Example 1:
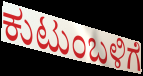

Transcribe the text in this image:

ಕುಟುಂಬಳಿಗೆ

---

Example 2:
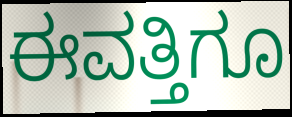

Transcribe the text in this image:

ಈವತ್ತಿಗೂ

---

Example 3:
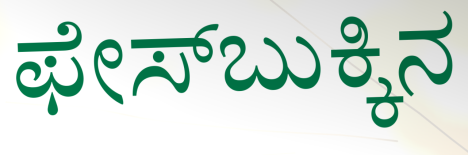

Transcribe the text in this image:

ಫೇಸ್‌ಬುಕ್ಕಿನ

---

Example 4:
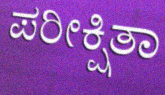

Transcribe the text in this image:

ಪರೀಕ್ಷಿತಾ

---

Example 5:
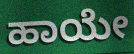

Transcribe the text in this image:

ಹಾಯೇ